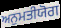
ਅਨੁਮਤੀਯੋਗ